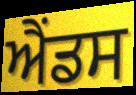
ਐਂਡਸ